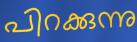
പിറക്കുന്നു